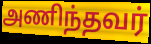
அணிந்தவர்